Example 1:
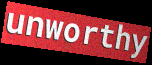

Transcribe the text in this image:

unworthy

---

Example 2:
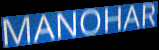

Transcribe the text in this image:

MANOHAR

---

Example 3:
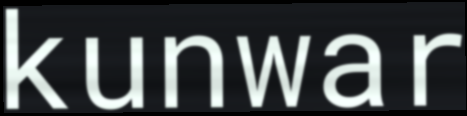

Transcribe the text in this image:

kunwar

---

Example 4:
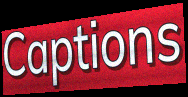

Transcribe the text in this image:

Captions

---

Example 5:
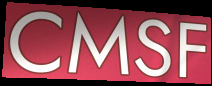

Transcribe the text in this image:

CMSF